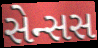
સેન્સસ